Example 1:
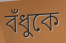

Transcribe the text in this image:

বঁধুকে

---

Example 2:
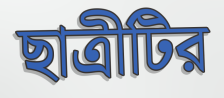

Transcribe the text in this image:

ছাত্রীটির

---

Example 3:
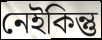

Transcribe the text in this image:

নেইকিন্তু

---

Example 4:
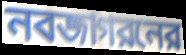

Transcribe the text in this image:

নবজাগরনের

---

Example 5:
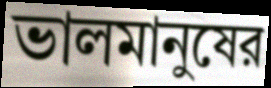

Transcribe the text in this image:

ভালমানুষের